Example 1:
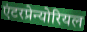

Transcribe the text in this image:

एंटरप्रेन्योरियल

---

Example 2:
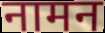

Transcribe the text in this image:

नामन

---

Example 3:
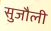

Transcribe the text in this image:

सुजौली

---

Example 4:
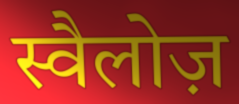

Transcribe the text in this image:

स्वैलोज़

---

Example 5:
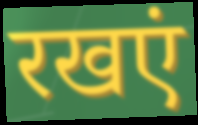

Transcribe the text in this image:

रखएं